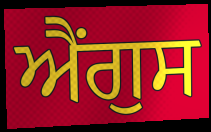
ਐਂਗੁਸ